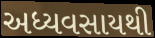
અધ્યવસાયથી